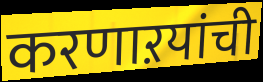
करणाऱयांची